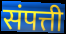
संपत्ती